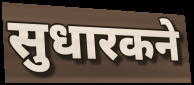
सुधारकने